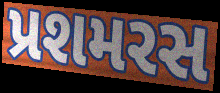
પ્રશમરસ